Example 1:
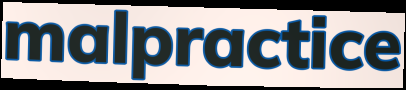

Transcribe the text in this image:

malpractice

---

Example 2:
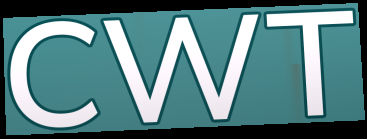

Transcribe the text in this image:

CWT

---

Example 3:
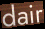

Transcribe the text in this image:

dair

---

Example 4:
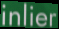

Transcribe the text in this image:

inlier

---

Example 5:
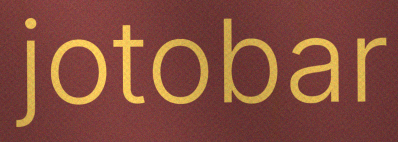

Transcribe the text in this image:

jotobar